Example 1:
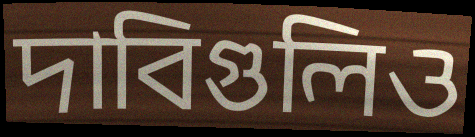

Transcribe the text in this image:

দাবিগুলিও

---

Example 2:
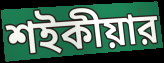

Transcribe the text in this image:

শইকীয়ার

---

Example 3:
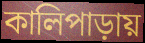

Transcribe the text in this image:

কালিপাড়ায়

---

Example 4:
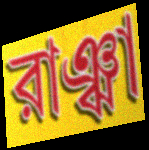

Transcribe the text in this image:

রাঞ্ঝা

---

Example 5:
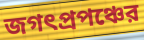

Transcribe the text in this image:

জগৎপ্রপঞ্চের